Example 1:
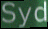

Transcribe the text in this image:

Syd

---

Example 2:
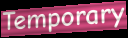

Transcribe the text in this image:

Temporary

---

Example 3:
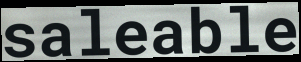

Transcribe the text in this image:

saleable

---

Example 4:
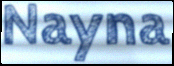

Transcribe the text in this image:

Nayna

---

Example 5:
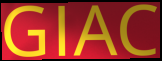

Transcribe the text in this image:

GIAC